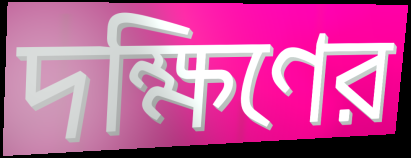
দক্ষিণের